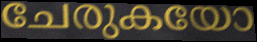
ചേരുകയോ